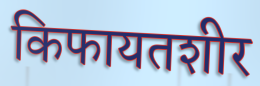
किफायतशीर